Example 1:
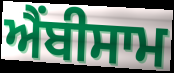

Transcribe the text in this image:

ਐਂਬੀਸਾਮ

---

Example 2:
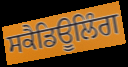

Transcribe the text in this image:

ਸਕੈਡਿਊਲਿੰਗ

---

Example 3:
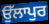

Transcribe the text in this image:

ਉੱਲਾਪੁਰ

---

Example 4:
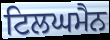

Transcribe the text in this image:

ਟਿਲਘਮੈਨ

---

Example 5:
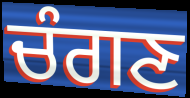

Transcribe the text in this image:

ਚੰਗਣ